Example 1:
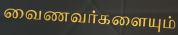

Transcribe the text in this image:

வைணவர்களையும்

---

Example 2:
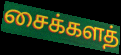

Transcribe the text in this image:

சைக்களத்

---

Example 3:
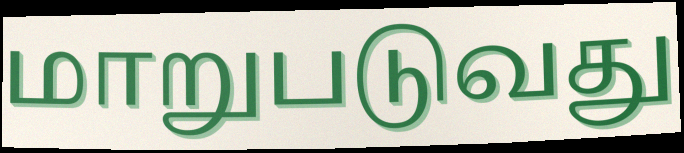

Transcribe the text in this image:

மாறுபடுவது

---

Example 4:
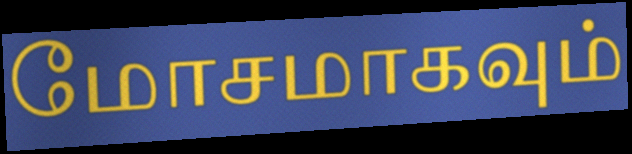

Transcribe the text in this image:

மோசமாகவும்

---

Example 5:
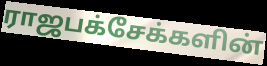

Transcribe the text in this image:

ராஜபக்சேக்களின்